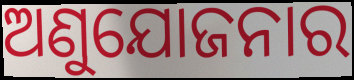
ଅଣୁଯୋଜନାର